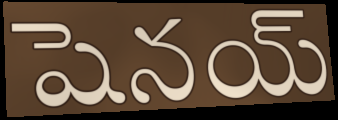
షెనయ్